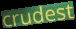
crudest